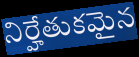
నిర్హేతుకమైన